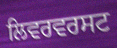
ਲਿਵਰਵਰਸਟ